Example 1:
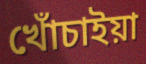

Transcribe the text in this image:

খোঁচাইয়া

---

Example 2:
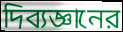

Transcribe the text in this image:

দিব্যজ্ঞানের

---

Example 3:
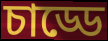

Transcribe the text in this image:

চাড্ডে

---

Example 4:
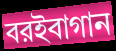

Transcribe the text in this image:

বরইবাগান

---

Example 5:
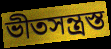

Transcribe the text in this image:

ভীতসন্ত্রস্ত